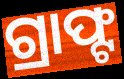
ଗ୍ରାଫ୍ଟ